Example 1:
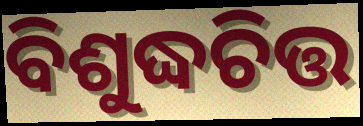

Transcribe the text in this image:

ବିଶୁଦ୍ଧଚିତ୍ତ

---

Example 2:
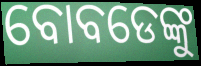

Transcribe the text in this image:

ବୋବଡେଙ୍କୁ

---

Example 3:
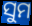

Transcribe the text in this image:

ସୁମ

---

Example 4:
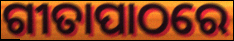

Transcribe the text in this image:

ଗୀତାପାଠରେ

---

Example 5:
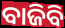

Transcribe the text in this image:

ବାଜିବି